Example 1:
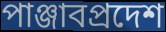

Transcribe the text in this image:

পাঞ্জাবপ্রদেশ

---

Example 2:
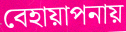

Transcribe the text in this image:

বেহায়াপনায়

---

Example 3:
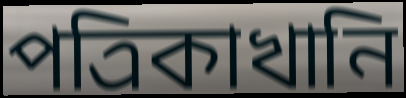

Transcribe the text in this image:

পত্রিকাখানি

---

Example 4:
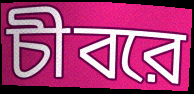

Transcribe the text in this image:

চীবরে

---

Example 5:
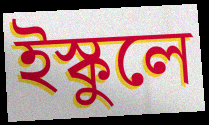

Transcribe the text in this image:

ইস্কুলে